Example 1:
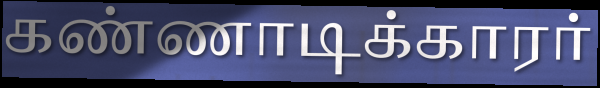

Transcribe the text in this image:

கண்ணாடிக்காரர்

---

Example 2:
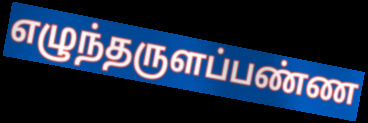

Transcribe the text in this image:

எழுந்தருளப்பண்ண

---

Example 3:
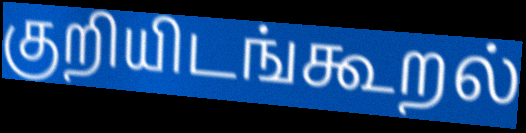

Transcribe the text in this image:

குறியிடங்கூறல்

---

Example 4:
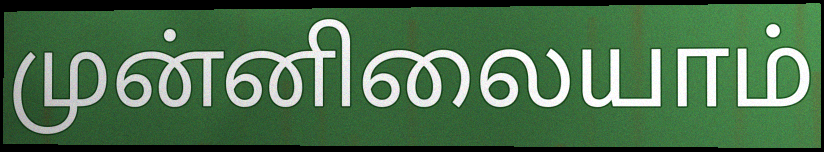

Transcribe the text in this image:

முன்னிலையாம்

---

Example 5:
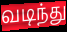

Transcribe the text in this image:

வடிந்து